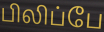
பிலிப்பே